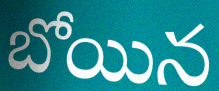
బోయిన